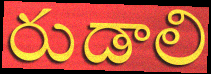
రుడాలి